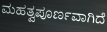
ಮಹತ್ವಪೂರ್ಣವಾಗಿದೆ